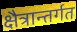
क्षैत्रान्तर्गत